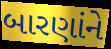
બારણાંને